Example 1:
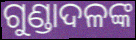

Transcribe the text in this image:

ଗୁଣ୍ଡାଦଳଙ୍କ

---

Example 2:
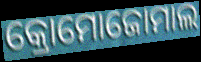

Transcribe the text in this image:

କ୍ରୋମୋଜୋମାଲ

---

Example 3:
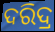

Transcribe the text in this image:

ଦରିଦ୍ର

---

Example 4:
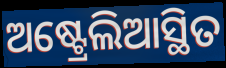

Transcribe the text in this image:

ଅଷ୍ଟ୍ରେଲିଆସ୍ଥିତ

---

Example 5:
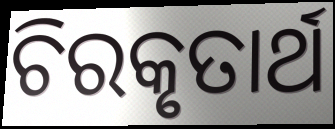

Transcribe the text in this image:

ଚିରକୃତାର୍ଥ